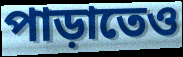
পাড়াতেও